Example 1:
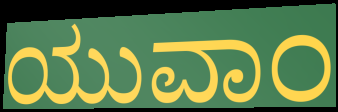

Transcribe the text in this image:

ಯುವಾಂ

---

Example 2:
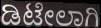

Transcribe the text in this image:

ಡಿಟೇಲಾಗಿ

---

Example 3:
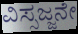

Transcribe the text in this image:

ವಿಸ್ಸಜ್ಜನೇ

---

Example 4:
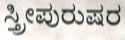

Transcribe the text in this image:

ಸ್ತ್ರೀಪುರುಷರ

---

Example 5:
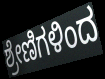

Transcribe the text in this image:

ಶ್ರೇಣಿಗಳಿಂದ